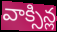
వాక్సిన్ల